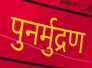
पुनर्मुद्रण